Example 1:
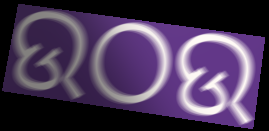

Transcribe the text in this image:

ଉଠଉ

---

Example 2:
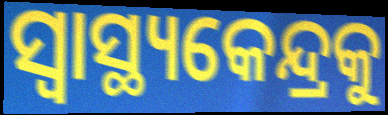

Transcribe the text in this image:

ସ୍ୱାସ୍ଥ୍ୟକେନ୍ଦ୍ରକୁ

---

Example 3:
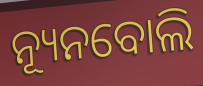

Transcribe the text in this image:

ନ୍ୟୂନବୋଲି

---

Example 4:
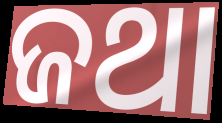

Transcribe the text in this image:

ଜଥା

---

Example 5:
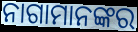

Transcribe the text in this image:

ନାଗାମାନଙ୍କର